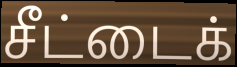
சீட்டைக்